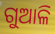
ଗୁଆଳି